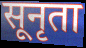
सूनृता